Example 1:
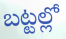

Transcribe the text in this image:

బట్టల్లో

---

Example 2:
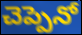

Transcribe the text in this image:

చెప్పెనో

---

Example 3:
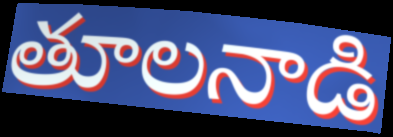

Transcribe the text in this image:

తూలనాడి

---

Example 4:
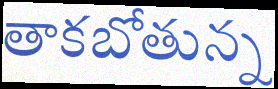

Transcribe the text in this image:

తాకబోతున్న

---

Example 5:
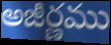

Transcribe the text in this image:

అజీర్ణము